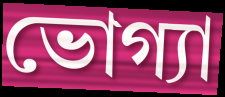
ভোগ্যা